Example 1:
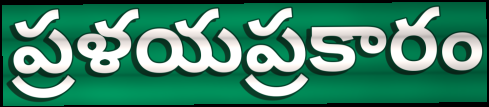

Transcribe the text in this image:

ప్రళయప్రకారం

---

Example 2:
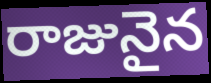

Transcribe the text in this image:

రాజునైన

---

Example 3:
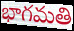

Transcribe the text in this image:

భాగమతి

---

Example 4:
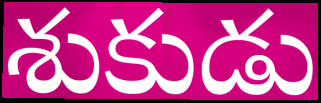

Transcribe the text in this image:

శుకుడు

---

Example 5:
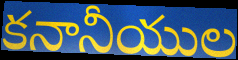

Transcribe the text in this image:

కనానీయుల